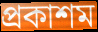
প্ৰকাশম